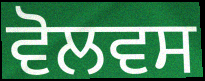
ਵੋਲਵਸ